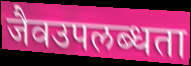
जैवउपलब्धता